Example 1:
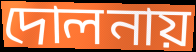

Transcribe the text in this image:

দোলনায়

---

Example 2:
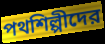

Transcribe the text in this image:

পথশিল্পীদের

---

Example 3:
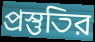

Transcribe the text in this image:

প্রস্তুতির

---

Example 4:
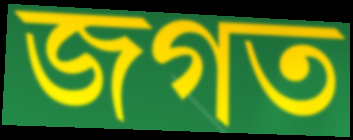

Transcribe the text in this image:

জগত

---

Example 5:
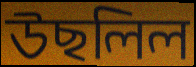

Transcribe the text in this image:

উছলিল